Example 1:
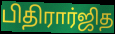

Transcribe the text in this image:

பிதிரார்ஜித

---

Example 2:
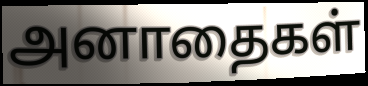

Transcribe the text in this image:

அனாதைகள்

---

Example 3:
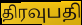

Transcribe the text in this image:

திரவுபதி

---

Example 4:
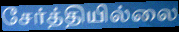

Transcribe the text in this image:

சேர்த்தியில்லை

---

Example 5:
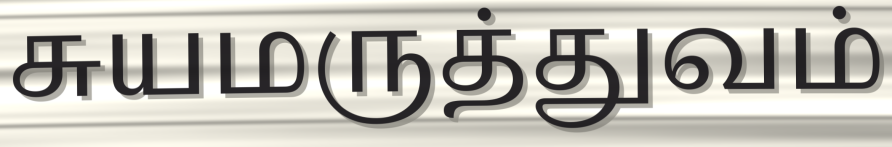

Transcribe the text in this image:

சுயமருத்துவம்